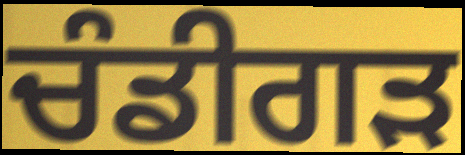
ਚੰਡੀਗੜ